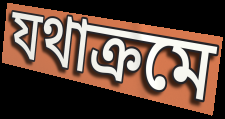
যথাক্ৰমে